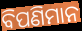
ବିପଣିମାନ